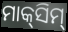
ମାକ୍‍ସିମ୍